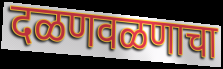
दळणवळणाचा